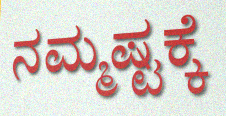
ನಮ್ಮಷ್ಟಕ್ಕೆ